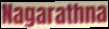
Nagarathna